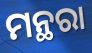
ମନ୍ଥରା